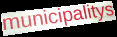
municipalitys